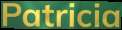
Patricia